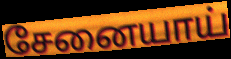
சேனையாய்